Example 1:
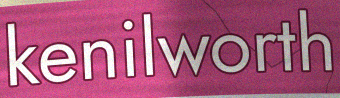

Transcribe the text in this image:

kenilworth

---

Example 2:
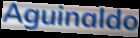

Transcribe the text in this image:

Aguinaldo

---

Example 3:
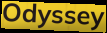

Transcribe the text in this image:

Odyssey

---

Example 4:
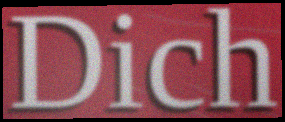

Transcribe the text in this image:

Dich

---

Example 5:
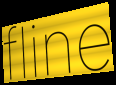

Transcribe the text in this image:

fline